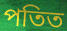
পতিত